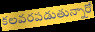
కలవరపడుతున్నారో